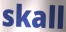
skall